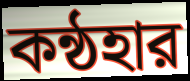
কন্ঠহার